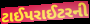
ટાઈપરાઈટરની